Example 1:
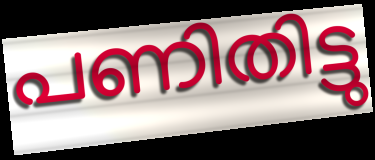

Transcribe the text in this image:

പണിതിട്ടു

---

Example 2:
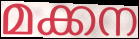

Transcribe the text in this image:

മക്കന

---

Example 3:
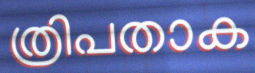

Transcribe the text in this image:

ത്രിപതാക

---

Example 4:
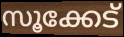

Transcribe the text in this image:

സൂക്കേട്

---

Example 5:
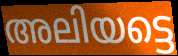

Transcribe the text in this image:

അലിയട്ടെ